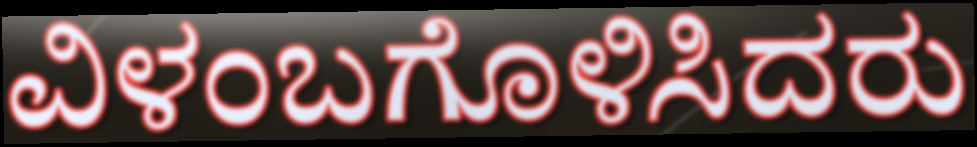
ವಿಳಂಬಗೊಳಿಸಿದರು